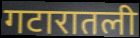
गटारातली